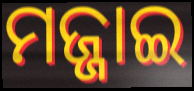
ମଜ୍ଜାଇ